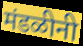
मंडळीनी